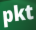
pkt